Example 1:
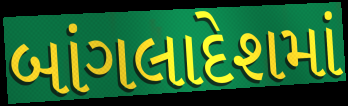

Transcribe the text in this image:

બાંગલાદેશમાં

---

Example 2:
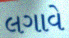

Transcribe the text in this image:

લગાવે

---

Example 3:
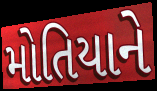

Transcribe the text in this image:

મોતિયાને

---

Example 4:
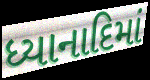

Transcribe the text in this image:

ધ્યાનાદિમાં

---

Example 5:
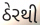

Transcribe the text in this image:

ઠેરથી